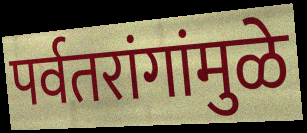
पर्वतरांगांमुळे